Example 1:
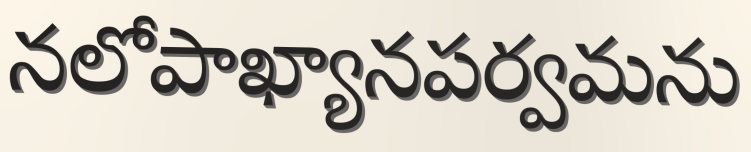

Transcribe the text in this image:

నలోపాఖ్యానపర్వమను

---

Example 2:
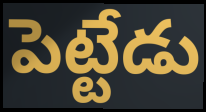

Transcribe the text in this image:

పెట్టేడు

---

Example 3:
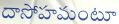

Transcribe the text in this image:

దాసోహమంటూ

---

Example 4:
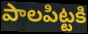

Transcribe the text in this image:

పాలపిట్టకి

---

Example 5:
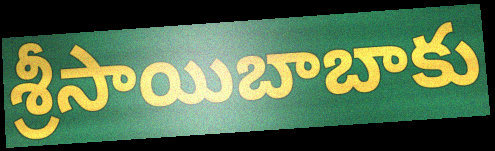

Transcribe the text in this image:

శ్రీసాయిబాబాకు